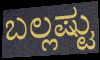
ಬಲ್ಲಷ್ಟು